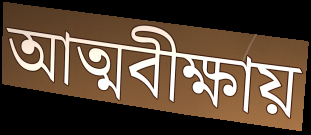
আত্মবীক্ষায়